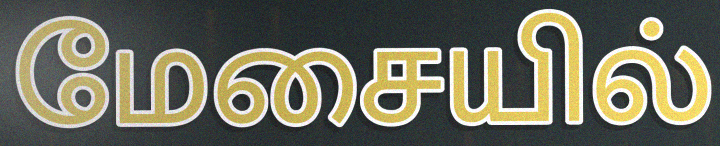
மேசையில்